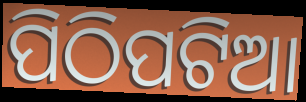
ପିଠିପଟିଆ